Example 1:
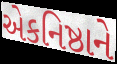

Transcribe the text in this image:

એકનિષ્ઠાને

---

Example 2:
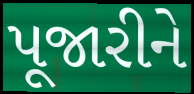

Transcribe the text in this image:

પૂજારીને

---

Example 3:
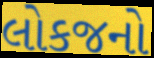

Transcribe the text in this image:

લોકજનો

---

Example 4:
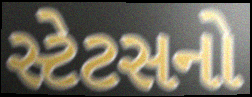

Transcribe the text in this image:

સ્ટેટસનો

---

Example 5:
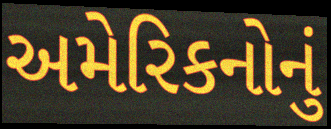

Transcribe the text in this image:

અમેરિકનોનું